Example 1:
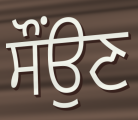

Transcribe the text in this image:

ਸੌਂਉਣ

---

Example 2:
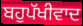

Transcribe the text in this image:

ਬਹੁਪੱਖੀਵਾਦ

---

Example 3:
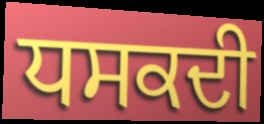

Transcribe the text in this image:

ਧਸਕਦੀ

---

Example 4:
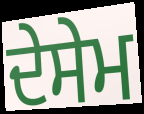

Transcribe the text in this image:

ਦੇਸੇਮ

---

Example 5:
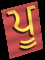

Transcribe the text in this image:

ਪੂ